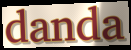
danda